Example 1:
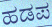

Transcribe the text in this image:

ಹಡಪ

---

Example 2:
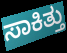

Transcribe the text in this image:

ಸಾಕಿತ್ತು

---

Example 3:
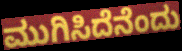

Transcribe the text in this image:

ಮುಗಿಸಿದೆನೆಂದು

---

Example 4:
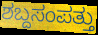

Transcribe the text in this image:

ಶಬ್ದಸಂಪತ್ತು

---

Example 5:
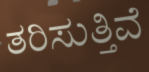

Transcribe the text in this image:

ತರಿಸುತ್ತಿವೆ